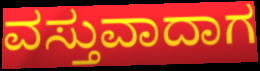
ವಸ್ತುವಾದಾಗ